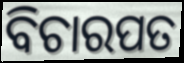
ବିଚାରପତ